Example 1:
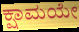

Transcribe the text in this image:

ಕ್ಷಾಮಯೇ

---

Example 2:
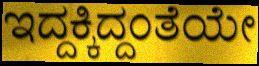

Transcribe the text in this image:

ಇದ್ದಕ್ಕಿದ್ದಂತೆಯೇ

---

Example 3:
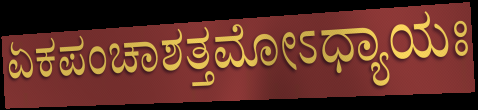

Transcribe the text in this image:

ಏಕಪಂಚಾಶತ್ತಮೋಽಧ್ಯಾಯಃ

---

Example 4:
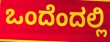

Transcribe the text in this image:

ಒಂದೆಂದಲ್ಲಿ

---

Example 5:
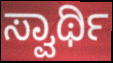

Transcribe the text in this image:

ಸ್ವಾರ್ಥಿ